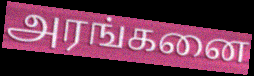
அரங்கனை